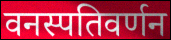
वनस्पतिवर्णन